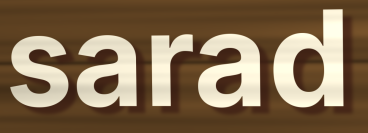
sarad